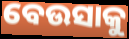
ବେଉସାକୁ